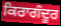
ਕਿਰਾਗੰਦੂਰ